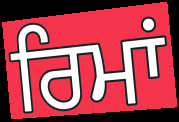
ਰਿਮਾਂ